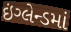
ઇંગ્લેન્ડમાં